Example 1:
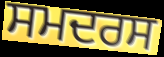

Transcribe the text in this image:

ਸਮਦਰਸ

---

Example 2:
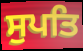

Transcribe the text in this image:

ਸੁਪਤਿ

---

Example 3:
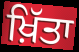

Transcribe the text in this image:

ਖ਼ਿੱਤਾ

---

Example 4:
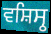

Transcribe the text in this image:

ਵਸ਼ਿਸ੍ਠ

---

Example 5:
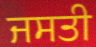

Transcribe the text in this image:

ਜਸਤੀ